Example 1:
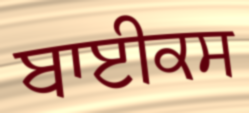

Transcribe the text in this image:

ਬਾਈਕਸ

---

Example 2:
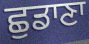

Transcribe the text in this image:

ਛੁਡਾਣਾ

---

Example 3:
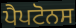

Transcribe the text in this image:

ਪੈਪਟੋਨਸ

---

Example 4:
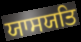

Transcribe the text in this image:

ਯਾਸਯਤਿ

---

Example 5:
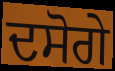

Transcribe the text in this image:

ਦਸੋਗੇ